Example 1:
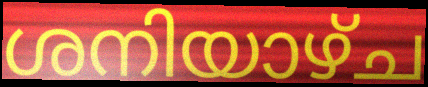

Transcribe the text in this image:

ശനിയാഴ്ച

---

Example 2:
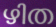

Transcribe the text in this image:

ഴിത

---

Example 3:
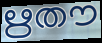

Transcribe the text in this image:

ഋതൗ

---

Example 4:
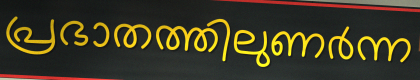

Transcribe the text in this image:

പ്രഭാതത്തിലുണർന്ന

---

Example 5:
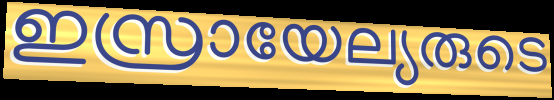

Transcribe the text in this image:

ഇസ്രായേല്യരുടെ